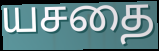
யசதை